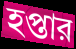
হপ্তার